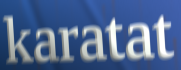
karatat